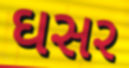
ઘસર